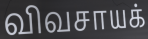
விவசாயக்